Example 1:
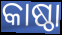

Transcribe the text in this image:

କାଷ୍ଠା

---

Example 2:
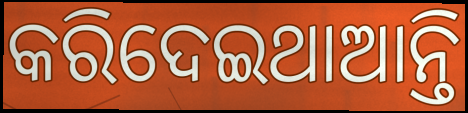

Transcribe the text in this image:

କରିଦେଇଥାଆନ୍ତି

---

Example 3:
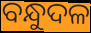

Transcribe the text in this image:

ବନ୍ଧୁଦଳ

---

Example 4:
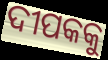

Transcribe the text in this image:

ଦୀପକକୁ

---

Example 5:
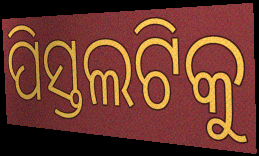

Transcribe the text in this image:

ପିସ୍ତଲଟିକୁ